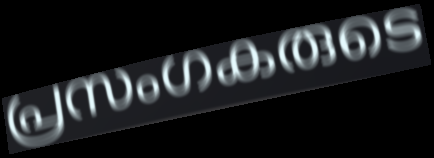
പ്രസംഗകരുടെ